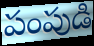
పంపుడి